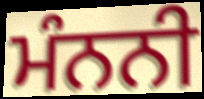
ਮੰਨਨੀ